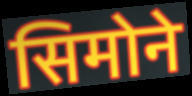
सिमोने